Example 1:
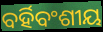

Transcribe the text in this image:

ବର୍ହିବଂଶୀୟ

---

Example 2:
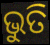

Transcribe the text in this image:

ଭୁତି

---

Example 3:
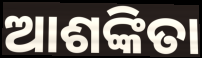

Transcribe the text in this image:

ଆଶଙ୍କିତା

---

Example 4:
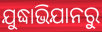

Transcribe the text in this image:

ଯୁଦ୍ଧାଭିଯାନରୁ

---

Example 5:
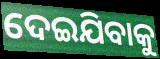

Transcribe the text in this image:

ଦେଇଯିବାକୁ